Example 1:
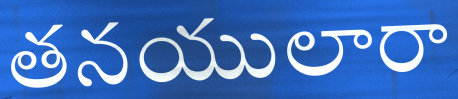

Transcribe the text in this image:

తనయులారా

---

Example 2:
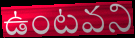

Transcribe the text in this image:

ఉంటవని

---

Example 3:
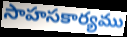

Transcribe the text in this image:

సాహసకార్యము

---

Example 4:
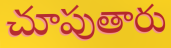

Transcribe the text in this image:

చూపుతారు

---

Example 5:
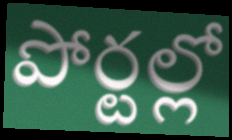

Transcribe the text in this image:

పోర్టల్లో